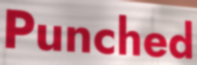
Punched